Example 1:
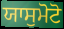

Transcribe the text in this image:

ਯਾਸੁਮੋਟੋ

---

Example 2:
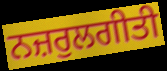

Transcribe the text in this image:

ਨਜ਼ਰੁਲਗੀਤੀ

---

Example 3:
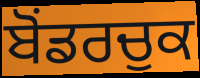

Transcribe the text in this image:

ਬੋਂਡਰਚੁਕ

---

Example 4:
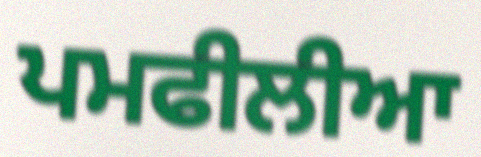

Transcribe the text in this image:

ਪਮਫੀਲੀਆ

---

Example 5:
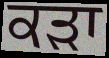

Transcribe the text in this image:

ਕੜਾ